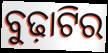
ବୁଢ଼ାଟିର